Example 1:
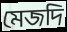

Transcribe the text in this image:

মেজদি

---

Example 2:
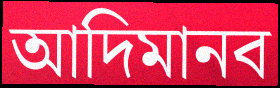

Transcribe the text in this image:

আদিমানব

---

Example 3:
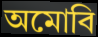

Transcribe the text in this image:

অমোবি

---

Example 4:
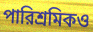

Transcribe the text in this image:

পারিশ্রমিকও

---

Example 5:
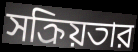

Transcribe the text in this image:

সক্রিয়তার